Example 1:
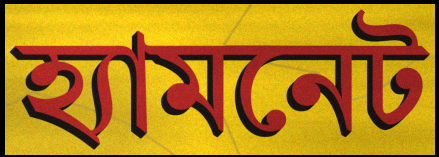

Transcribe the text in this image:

হ্যামনেট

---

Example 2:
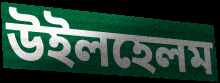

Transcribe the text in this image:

উইলহেলম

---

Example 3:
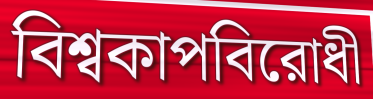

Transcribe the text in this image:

বিশ্বকাপবিরোধী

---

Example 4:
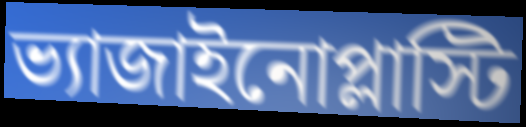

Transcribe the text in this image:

ভ্যাজাইনোপ্লাস্টি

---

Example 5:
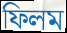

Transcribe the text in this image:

ফিলম